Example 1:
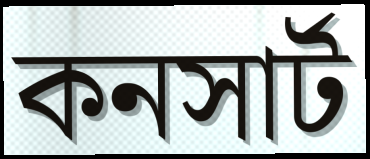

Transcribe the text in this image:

কনসার্ট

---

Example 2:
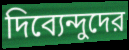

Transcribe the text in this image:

দিব্যেন্দুদের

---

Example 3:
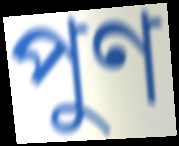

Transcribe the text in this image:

পুণ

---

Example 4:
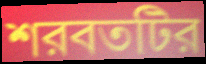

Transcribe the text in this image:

শরবতটির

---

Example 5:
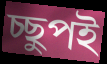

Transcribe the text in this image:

চ্ছুপই